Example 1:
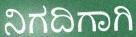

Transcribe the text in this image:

ನಿಗದಿಗಾಗಿ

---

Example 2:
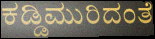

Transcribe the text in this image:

ಕಡ್ಡಿಮುರಿದಂತೆ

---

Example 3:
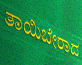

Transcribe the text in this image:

ತಾಯಿಬೇರಾದ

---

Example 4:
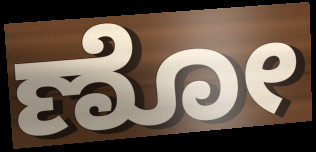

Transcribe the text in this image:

ಣೋ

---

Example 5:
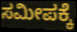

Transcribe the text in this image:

ಸಮೀಪಕ್ಕೆ